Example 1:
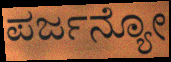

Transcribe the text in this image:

ಪರ್ಜನ್ಯೋ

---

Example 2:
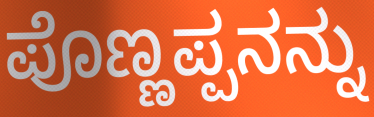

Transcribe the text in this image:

ಪೊಣ್ಣಪ್ಪನನ್ನು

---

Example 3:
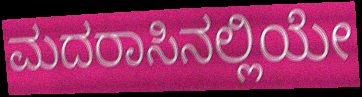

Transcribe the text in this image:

ಮದರಾಸಿನಲ್ಲಿಯೇ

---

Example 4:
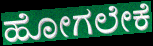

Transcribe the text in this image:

ಹೋಗಲೇಕೆ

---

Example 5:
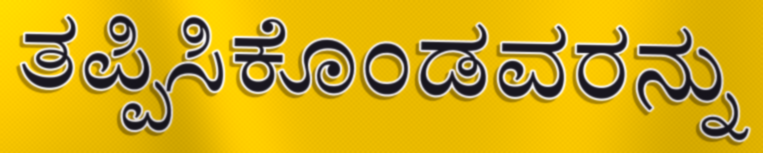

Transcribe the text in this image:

ತಪ್ಪಿಸಿಕೊಂಡವರನ್ನು